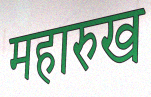
महारुख